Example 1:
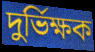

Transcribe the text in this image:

দুৰ্ভিক্ষক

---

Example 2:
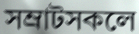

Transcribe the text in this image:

সম্ৰাটসকলে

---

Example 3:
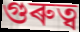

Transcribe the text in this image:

গুৰুত্ব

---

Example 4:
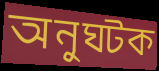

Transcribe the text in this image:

অনুঘটক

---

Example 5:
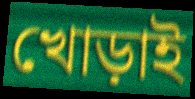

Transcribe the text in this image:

খোড়াই